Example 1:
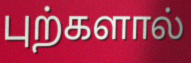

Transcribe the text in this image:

புற்களால்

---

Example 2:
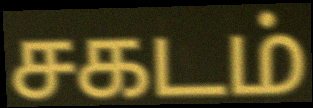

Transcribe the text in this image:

சகடம்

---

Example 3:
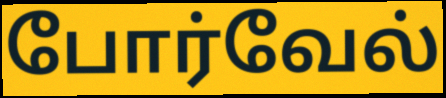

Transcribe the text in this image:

போர்வேல்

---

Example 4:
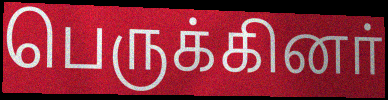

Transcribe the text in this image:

பெருக்கினர்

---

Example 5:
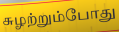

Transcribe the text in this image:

சுழற்றும்போது